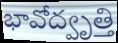
భావోద్వృత్తి